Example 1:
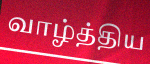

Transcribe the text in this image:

வாழ்த்திய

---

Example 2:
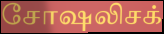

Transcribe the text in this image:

சோஷலிசக்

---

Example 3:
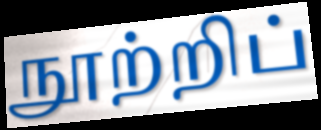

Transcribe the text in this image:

நூற்றிப்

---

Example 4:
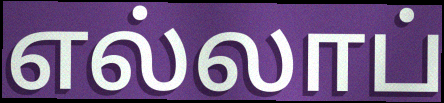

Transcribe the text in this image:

எல்லாப்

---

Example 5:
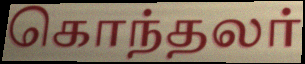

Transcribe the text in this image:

கொந்தலர்